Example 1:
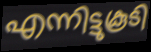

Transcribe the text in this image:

എന്നിട്ടുകൂടി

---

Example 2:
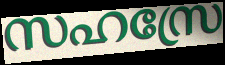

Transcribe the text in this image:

സഹസ്രേ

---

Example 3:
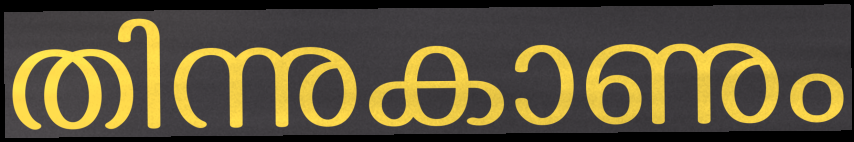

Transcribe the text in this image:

തിന്നുകാണും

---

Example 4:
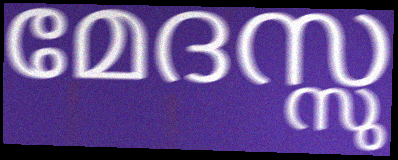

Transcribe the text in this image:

മേദസ്സു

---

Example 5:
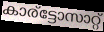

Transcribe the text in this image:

കാര്ട്ടോസാറ്റ്